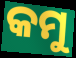
କମୁ